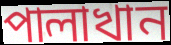
পালাখান